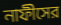
নাফীসের